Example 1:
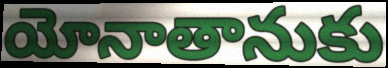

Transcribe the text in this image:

యోనాతానుకు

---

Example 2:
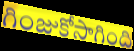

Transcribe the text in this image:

గింజుకోసాగింది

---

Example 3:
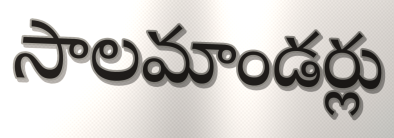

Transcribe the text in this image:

సాలమాండర్లు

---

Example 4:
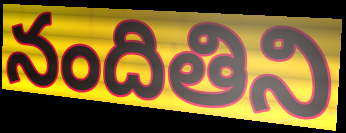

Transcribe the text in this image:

నందితిని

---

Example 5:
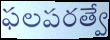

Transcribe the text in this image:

ఫలపరత్వే